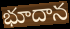
భూదాన